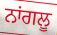
ਨਾਂਗਲੂ